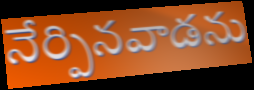
నేర్పినవాడను